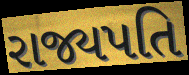
રાજ્યપતિ